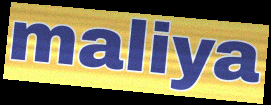
maliya